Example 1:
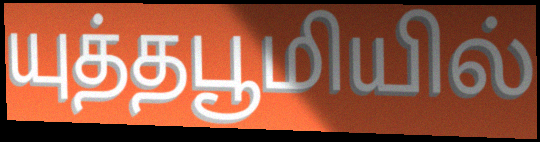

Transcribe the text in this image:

யுத்தபூமியில்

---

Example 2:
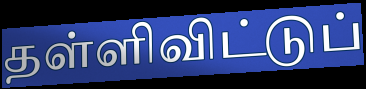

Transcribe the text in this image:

தள்ளிவிட்டுப்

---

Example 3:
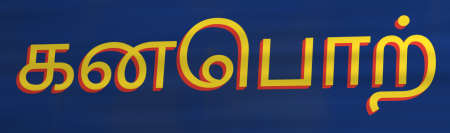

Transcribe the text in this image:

கனபொற்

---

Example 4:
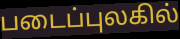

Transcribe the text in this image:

படைப்புலகில்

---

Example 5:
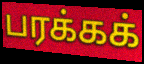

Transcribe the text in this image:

பரக்கக்